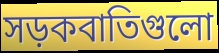
সড়কবাতিগুলো